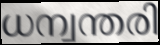
ധന്വന്തരി